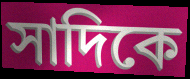
সাদিকে